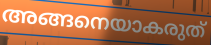
അങ്ങനെയാകരുത്